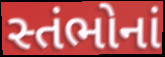
સ્તંભોનાં